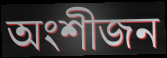
অংশীজন